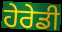
ਹੇਰੇਡੀ